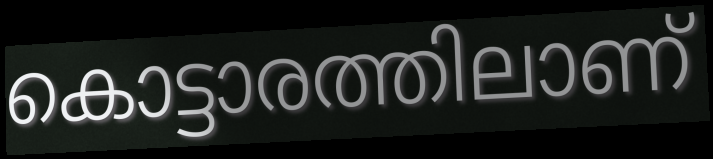
കൊട്ടാരത്തിലാണ്